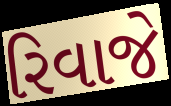
રિવાજે